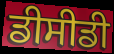
ਡੀਸੀਡੀ